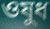
ওষুধ